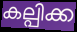
കല്പിക്ക